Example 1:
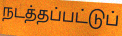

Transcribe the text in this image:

நடத்தப்பட்டுப்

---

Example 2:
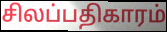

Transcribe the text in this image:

சிலப்பதிகாரம்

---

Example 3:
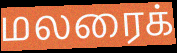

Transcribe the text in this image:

மலரைக்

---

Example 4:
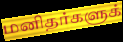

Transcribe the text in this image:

மனிதர்களுக்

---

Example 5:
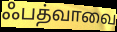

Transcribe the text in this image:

ஃபத்வாவை